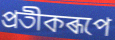
প্ৰতীকৰূপে